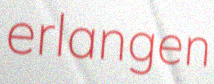
erlangen